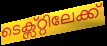
ടെക്സ്റ്റിലേക്ക്